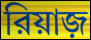
রিয়াজ়